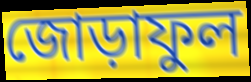
জোড়াফুল